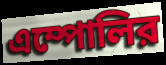
এম্পোলির